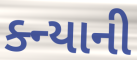
ક્ન્યાની